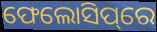
ଫେଲୋସିପ୍‌ରେ